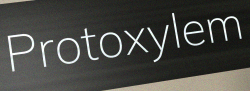
Protoxylem